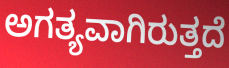
ಅಗತ್ಯವಾಗಿರುತ್ತದೆ